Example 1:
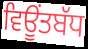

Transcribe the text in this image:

ਵਿਊਂਤਬੱਧ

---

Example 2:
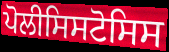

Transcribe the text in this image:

ਪੋਲੀਸਿਸਟੋਸਿਸ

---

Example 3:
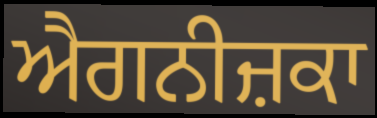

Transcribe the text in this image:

ਐਗਨੀਜ਼ਕਾ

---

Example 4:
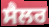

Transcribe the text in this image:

ਸੈਲਰ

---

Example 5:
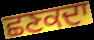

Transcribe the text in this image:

ਛਣਕਦਾ